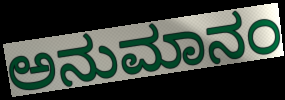
ಅನುಮಾನಂ